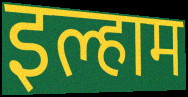
इल्हाम